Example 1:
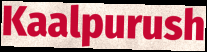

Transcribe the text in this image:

Kaalpurush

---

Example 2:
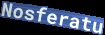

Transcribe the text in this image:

Nosferatu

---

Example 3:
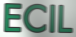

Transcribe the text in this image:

ECIL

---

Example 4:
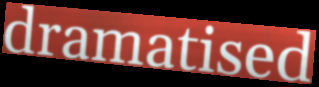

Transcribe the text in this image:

dramatised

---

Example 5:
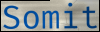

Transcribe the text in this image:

Somit